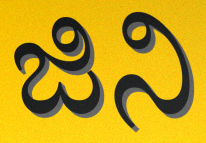
ಜಿನಿ